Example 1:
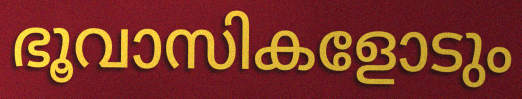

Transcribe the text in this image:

ഭൂവാസികളോടും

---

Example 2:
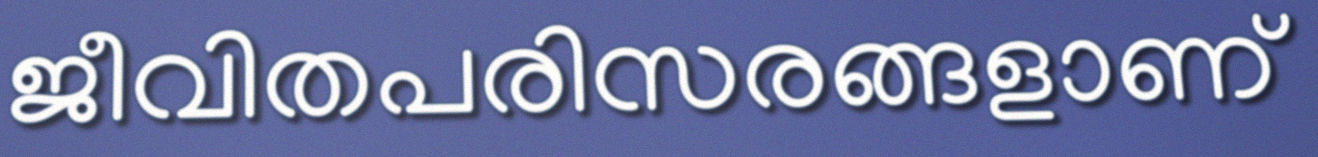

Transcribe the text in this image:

ജീവിതപരിസരങ്ങളാണ്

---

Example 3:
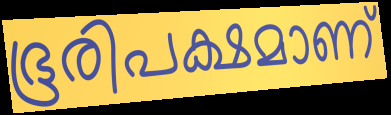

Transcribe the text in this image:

ഭൂരിപക്ഷമാണ്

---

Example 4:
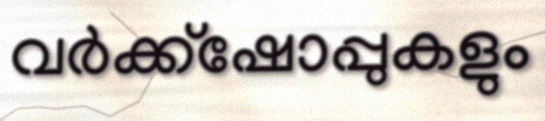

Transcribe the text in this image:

വർക്ക്ഷോപ്പുകളും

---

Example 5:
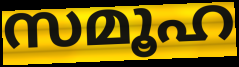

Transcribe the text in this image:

സമൂഹ